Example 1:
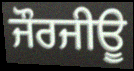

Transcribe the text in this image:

ਜੌਰਜੀਊ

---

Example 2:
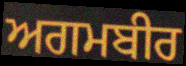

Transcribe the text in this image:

ਅਗਮਬੀਰ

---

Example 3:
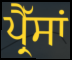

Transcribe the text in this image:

ਪ੍ਰੈੱਸਾਂ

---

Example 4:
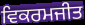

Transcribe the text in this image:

ਵਿਕਰਮਜੀਤ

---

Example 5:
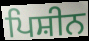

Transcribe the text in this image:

ਪਿਸ਼ੀਨ